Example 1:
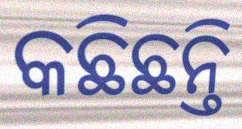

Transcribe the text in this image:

କଛିଛନ୍ତି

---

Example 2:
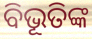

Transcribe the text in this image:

ବିଭୂତିଙ୍କ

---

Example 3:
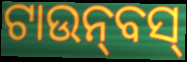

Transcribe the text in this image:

ଟାଉନ୍‍ବସ୍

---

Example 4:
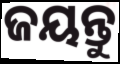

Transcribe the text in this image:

ଜୟନ୍ତୁ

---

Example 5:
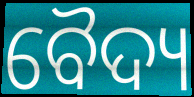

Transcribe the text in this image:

ବୈଦ୍ୟ